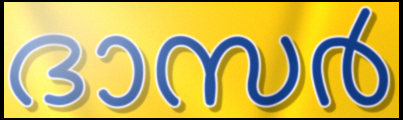
ദാസർ